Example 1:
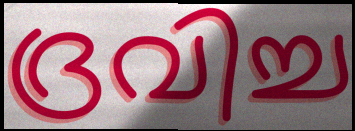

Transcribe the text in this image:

ദ്രവിച്ച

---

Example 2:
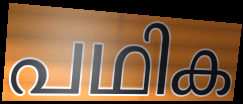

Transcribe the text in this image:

പഥിക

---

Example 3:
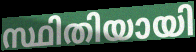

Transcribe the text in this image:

സ്ഥിതിയായി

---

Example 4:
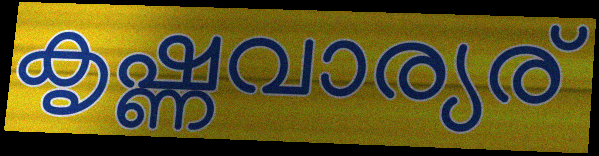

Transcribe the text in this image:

കൃഷ്ണവാര്യര്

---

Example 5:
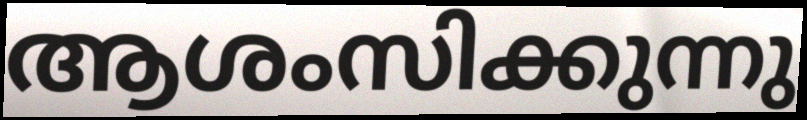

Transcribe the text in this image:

ആശംസിക്കുന്നു